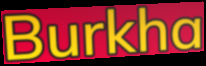
Burkha